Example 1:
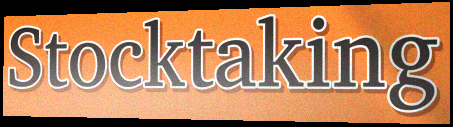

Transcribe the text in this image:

Stocktaking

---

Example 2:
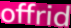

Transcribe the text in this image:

offrid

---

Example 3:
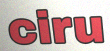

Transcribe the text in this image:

ciru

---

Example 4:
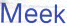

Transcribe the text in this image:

Meek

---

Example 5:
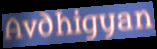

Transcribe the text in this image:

Avdhigyan